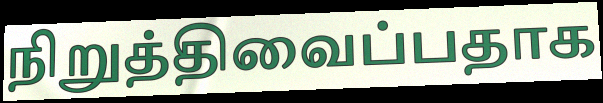
நிறுத்திவைப்பதாக